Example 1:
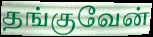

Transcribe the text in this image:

தங்குவேன்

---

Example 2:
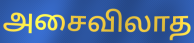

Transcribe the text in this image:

அசைவிலாத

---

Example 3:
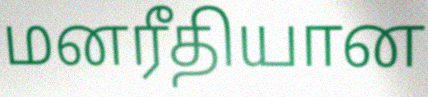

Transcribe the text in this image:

மனரீதியான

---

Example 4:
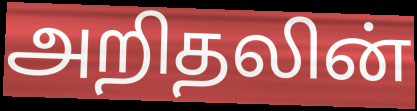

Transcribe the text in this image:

அறிதலின்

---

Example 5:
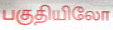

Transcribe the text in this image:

பகுதியிலோ